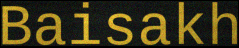
Baisakh